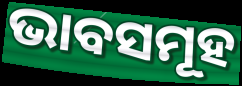
ଭାବସମୂହ